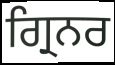
ਗ੍ਰਿਨਰ